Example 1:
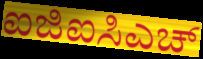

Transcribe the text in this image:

ಐಜಿಐಸಿಎಚ್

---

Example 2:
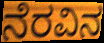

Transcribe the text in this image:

ನೆರವಿನ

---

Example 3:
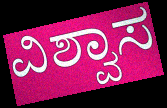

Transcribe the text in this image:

ವಿಶ್ವಾಸ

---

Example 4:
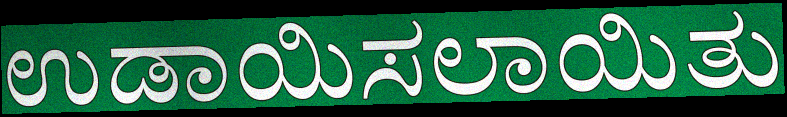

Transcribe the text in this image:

ಉಡಾಯಿಸಲಾಯಿತು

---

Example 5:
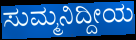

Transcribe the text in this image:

ಸುಮ್ಮನಿದ್ದೀಯ